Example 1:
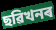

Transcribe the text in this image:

ছৱিখনৰ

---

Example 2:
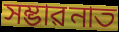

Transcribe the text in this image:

সম্ভাৱনাত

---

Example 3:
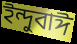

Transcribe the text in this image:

ইন্দুবাঈ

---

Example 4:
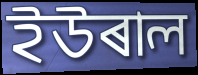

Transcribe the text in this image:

ইউৰাল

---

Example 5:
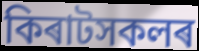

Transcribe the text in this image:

কিৰাটসকলৰ